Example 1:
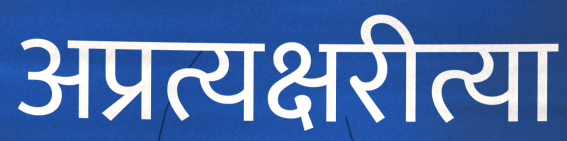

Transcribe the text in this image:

अप्रत्यक्षरीत्या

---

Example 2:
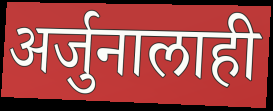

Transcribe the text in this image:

अर्जुनालाही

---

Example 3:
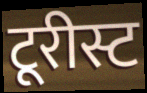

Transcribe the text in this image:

टूरीस्ट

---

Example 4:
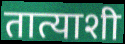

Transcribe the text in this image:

तात्याशी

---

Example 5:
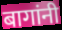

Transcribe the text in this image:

बागांनी